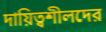
দায়িত্বশীলদের